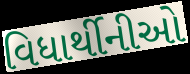
વિધાર્થીનીઓ